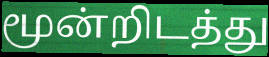
மூன்றிடத்து